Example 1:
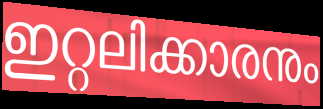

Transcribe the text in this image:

ഇറ്റലിക്കാരനും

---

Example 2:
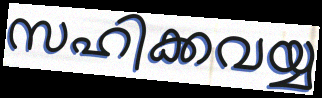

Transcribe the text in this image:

സഹിക്കവയ്യ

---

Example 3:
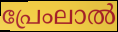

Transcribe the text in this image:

പ്രേംലാൽ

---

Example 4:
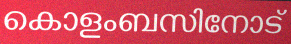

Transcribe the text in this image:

കൊളംബസിനോട്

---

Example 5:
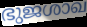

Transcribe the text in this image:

ഭുജശാഖ